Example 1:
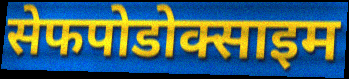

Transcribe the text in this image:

सेफपोडोक्साइम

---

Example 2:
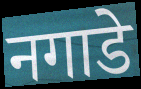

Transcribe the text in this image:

नगाडे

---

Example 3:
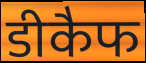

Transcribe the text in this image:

डीकैफ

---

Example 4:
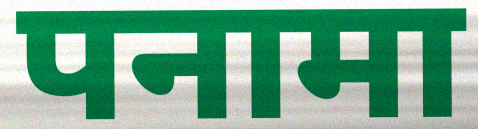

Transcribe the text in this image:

पनामा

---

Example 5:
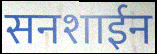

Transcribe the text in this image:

सनशाईन